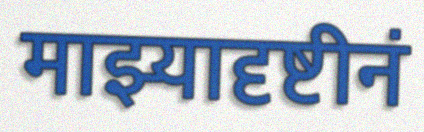
माझ्यादृष्टीनं